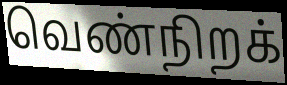
வெண்நிறக்